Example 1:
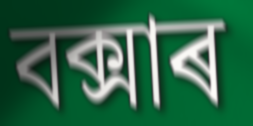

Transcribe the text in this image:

বক্সাৰ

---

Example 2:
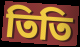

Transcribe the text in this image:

তিতি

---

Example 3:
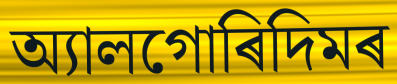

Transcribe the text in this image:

অ্যালগোৰিদিমৰ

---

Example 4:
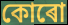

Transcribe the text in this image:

কোৰো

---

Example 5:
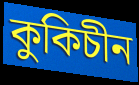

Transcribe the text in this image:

কুকিচীন